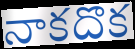
నాకదొక